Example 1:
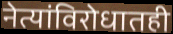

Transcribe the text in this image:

नेत्यांविरोधातही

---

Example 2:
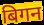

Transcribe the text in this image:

बिगन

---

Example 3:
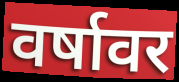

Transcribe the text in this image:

वर्षावर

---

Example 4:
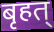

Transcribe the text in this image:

बृहत्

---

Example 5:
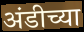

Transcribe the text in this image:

अंडीच्या